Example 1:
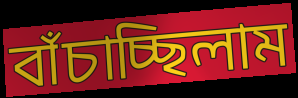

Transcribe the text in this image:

বাঁচাচ্ছিলাম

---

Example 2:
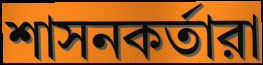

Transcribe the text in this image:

শাসনকর্তারা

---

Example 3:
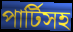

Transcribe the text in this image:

পার্টিসহ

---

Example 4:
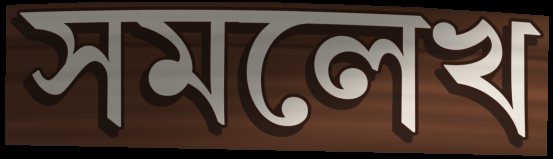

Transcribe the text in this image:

সমলেখ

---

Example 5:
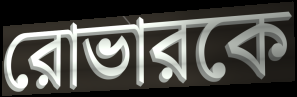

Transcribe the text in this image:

রোভারকে